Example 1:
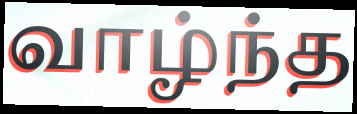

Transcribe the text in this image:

வாழ்ந்த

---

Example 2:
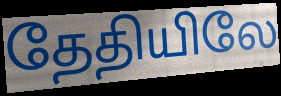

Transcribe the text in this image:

தேதியிலே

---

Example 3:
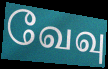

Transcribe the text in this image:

வேவு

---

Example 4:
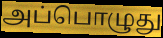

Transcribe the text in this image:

அப்பொழுது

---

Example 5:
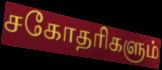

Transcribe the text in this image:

சகோதரிகளும்